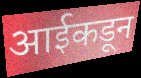
आईकडून